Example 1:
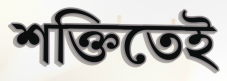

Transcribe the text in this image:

শক্তিতেই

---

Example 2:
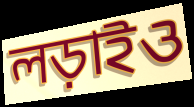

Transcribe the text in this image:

লড়াইও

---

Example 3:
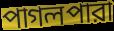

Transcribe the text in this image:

পাগলপারা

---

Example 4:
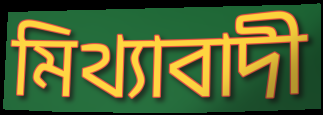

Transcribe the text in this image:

মিথ্যাবাদী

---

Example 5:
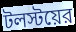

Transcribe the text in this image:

টলস্টয়ের